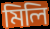
মিলি